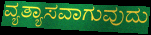
ವ್ಯತ್ಯಾಸವಾಗುವುದು